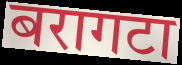
बरागटा